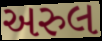
અરુલ